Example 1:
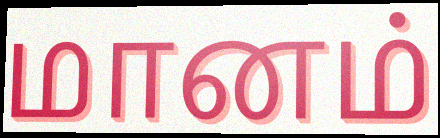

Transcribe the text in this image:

மானம்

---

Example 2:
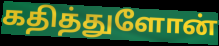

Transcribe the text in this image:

கதித்துளோன்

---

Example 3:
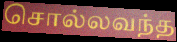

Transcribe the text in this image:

சொல்லவந்த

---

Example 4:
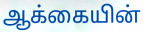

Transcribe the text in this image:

ஆக்கையின்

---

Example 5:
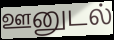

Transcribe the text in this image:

ஊனுடல்